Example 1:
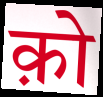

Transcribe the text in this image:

क़ो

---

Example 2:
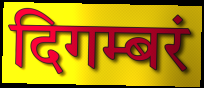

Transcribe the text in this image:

दिगम्बरं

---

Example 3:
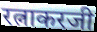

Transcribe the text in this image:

रत्नाकरजी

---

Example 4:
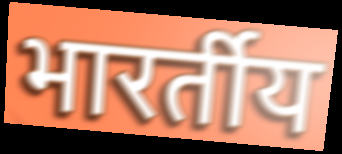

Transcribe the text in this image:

भारर्तीय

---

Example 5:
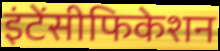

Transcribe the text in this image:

इंटेंसीफिकेशन